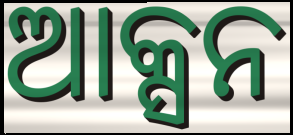
ଆକ୍ସନ